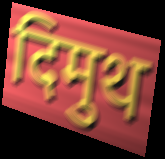
दिमुथ